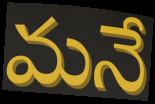
మనే